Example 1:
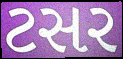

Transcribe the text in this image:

ટસર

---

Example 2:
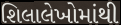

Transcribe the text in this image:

શિલાલેખોમાંથી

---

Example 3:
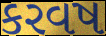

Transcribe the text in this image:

કરવષ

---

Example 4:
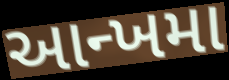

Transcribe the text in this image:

આન્ખમા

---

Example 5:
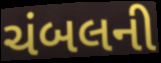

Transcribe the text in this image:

ચંબલની